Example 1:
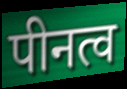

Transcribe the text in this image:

पीनत्व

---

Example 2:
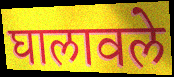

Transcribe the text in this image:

घालावले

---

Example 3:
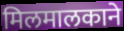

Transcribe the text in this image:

मिलमालकाने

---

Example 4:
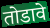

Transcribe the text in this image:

तोडावे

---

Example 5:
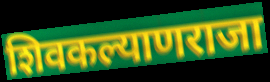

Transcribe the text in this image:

शिवकल्याणराजा